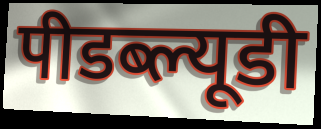
पीडब्ल्यूडी